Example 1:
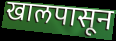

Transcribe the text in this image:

खालपासून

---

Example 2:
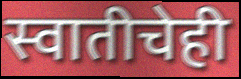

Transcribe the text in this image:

स्वातीचेही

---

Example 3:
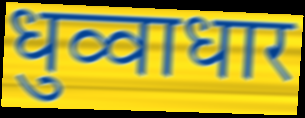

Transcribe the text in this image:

धुव्वाधार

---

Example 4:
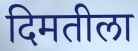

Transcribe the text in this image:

दिमतीला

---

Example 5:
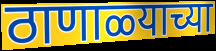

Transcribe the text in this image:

ठाणाळ्याच्या